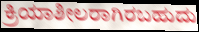
ಕ್ರಿಯಾಶೀಲರಾಗಿರಬಹುದು